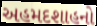
અહમદશાહનો